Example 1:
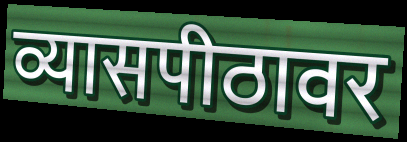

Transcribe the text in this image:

व्यासपीठावर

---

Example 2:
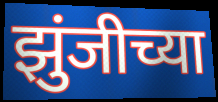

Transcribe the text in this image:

झुंजीच्या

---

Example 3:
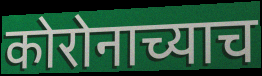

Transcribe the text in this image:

कोरोनाच्याच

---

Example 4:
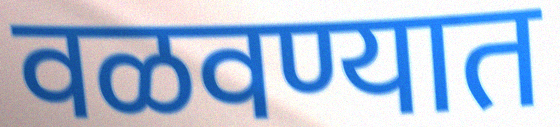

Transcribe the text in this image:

वळवण्यात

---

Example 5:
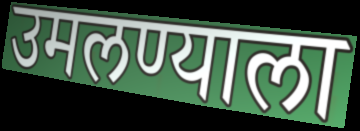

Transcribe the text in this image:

उमलण्याला